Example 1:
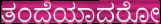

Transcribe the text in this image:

ತಂದೆಯಾದರೋ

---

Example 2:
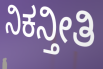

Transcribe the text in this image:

ನಿಕನ್ತೀತಿ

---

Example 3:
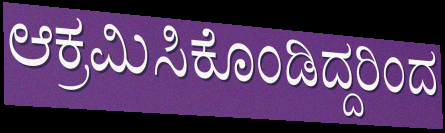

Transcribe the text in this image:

ಆಕ್ರಮಿಸಿಕೊಂಡಿದ್ದರಿಂದ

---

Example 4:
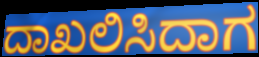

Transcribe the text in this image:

ದಾಖಲಿಸಿದಾಗ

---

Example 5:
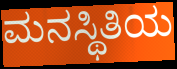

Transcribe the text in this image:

ಮನಸ್ಥಿತಿಯ